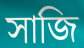
সাজি